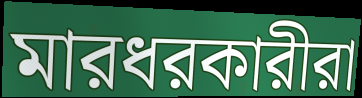
মারধরকারীরা